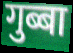
गुब्बा